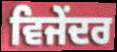
ਵਿਜੇਂਦਰ